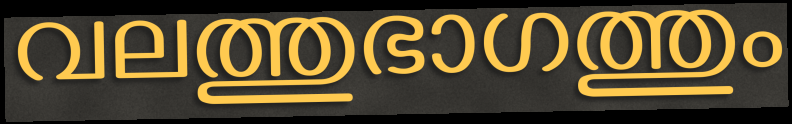
വലത്തുഭാഗത്തും